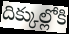
దిక్కుల్లోకి